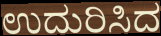
ಉದುರಿಸಿದ